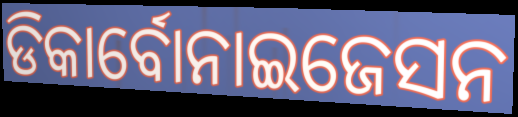
ଡିକାର୍ବୋନାଇଜେସନ